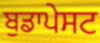
ਬੁਡਾਪੇਸਟ